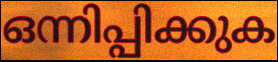
ഒന്നിപ്പിക്കുക